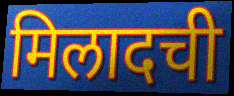
मिलादची